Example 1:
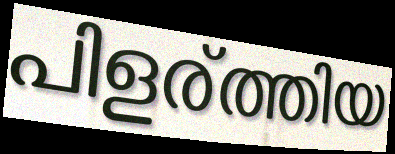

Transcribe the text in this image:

പിളര്ത്തിയ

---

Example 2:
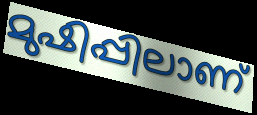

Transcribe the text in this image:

മുഷിപ്പിലാണ്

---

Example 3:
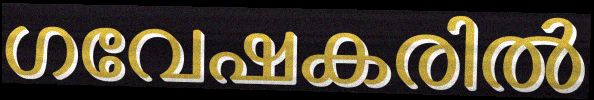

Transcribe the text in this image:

ഗവേഷകരിൽ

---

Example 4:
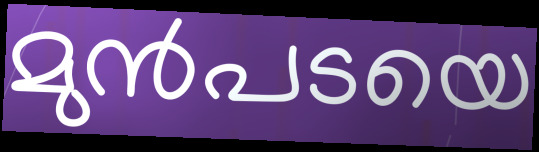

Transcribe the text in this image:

മുൻപടയെ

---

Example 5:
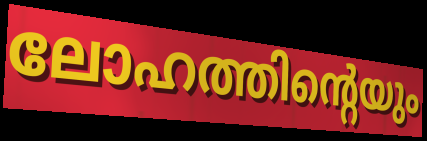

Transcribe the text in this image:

ലോഹത്തിന്റെയും